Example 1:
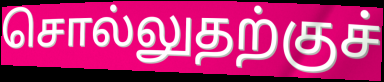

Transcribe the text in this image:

சொல்லுதற்குச்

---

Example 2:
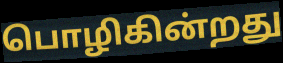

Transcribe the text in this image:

பொழிகின்றது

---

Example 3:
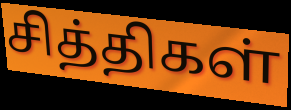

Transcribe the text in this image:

சித்திகள்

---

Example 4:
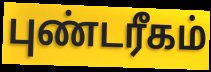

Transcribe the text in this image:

புண்டரீகம்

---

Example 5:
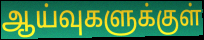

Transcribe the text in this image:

ஆய்வுகளுக்குள்